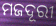
ମଜଦୂରୀ